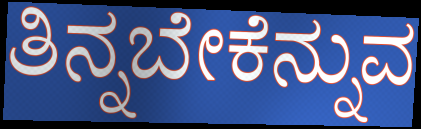
ತಿನ್ನಬೇಕೆನ್ನುವ